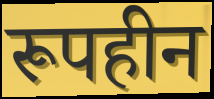
रूपहीन